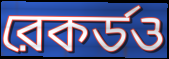
রেকর্ডও